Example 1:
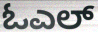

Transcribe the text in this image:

ಓಎಲ್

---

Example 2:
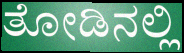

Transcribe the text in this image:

ತೋಡಿನಲ್ಲಿ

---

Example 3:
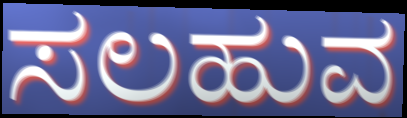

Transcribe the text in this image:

ಸಲಹುವ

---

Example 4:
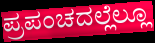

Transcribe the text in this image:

ಪ್ರಪಂಚದಲ್ಲೆಲ್ಲೂ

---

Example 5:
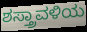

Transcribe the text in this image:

ಶಸ್ತ್ರಾವಳಿಯ